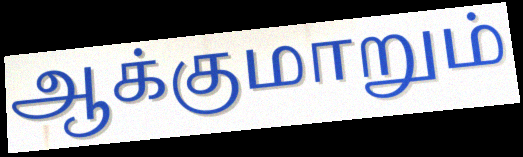
ஆக்குமாறும்